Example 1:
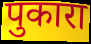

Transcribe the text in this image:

पुकारा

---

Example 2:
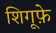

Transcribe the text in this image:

शिगूफ़े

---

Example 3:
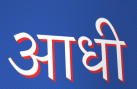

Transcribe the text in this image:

आधी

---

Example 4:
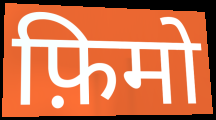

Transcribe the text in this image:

फ़िमो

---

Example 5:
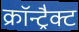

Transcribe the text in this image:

क्रॉन्ट्रैक्ट